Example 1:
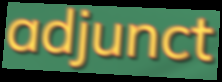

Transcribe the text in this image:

adjunct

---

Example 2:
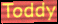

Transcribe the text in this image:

Toddy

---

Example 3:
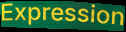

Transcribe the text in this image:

Expression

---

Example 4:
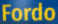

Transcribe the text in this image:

Fordo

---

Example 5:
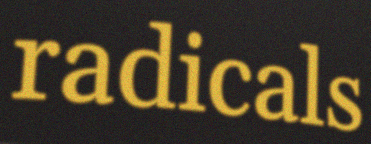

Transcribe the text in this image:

radicals